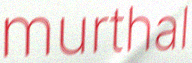
murthal